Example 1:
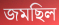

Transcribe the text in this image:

জমছিল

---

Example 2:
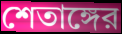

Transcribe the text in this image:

শেতাঙ্গের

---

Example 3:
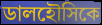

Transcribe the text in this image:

ডালহৌসিকে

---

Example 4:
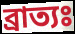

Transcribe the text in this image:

ব্রাত্যঃ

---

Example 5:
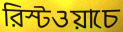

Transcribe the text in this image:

রিস্টওয়াচে